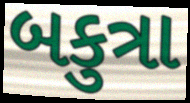
બકુત્રા